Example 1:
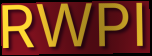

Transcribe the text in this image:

RWPI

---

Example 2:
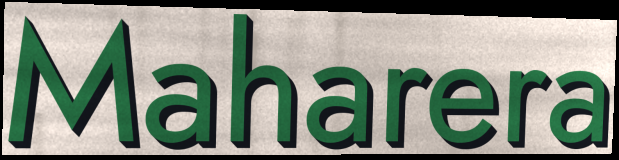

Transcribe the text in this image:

Maharera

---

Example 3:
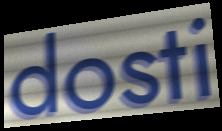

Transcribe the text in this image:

dosti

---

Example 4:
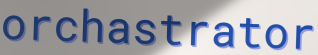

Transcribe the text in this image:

orchastrator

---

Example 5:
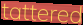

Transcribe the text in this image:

tattered